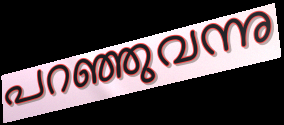
പറഞ്ഞുവന്നു